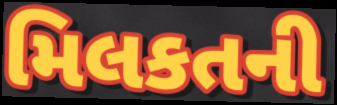
મિલકતની